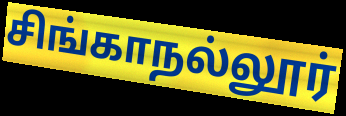
சிங்காநல்லூர்